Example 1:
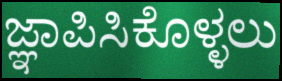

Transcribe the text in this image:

ಜ್ಞಾಪಿಸಿಕೊಳ್ಳಲು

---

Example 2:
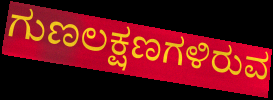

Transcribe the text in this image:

ಗುಣಲಕ್ಷಣಗಳಿರುವ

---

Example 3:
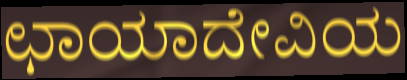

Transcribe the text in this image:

ಛಾಯಾದೇವಿಯ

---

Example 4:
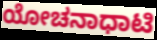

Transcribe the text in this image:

ಯೋಚನಾಧಾಟಿ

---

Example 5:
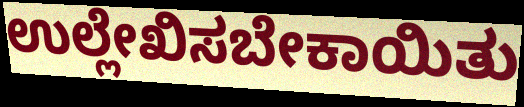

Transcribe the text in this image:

ಉಲ್ಲೇಖಿಸಬೇಕಾಯಿತು